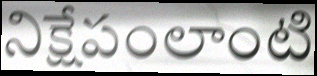
నిక్షేపంలాంటి